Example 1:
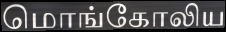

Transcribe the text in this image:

மொங்கோலிய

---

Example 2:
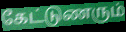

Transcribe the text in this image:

கேட்டுணரும்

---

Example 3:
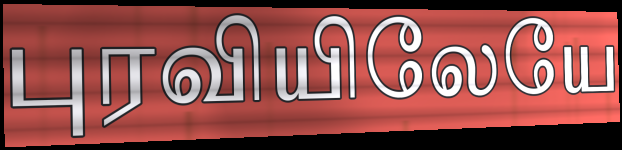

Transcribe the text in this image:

புரவியிலேயே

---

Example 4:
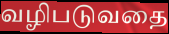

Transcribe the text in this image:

வழிபடுவதை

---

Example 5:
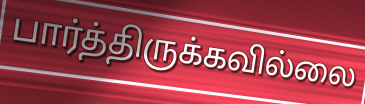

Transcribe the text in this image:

பார்த்திருக்கவில்லை